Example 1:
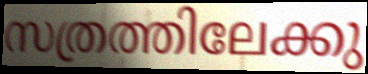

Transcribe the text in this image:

സത്രത്തിലേക്കു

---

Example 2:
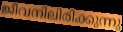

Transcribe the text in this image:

ജീവനിലിരിക്കുന്നു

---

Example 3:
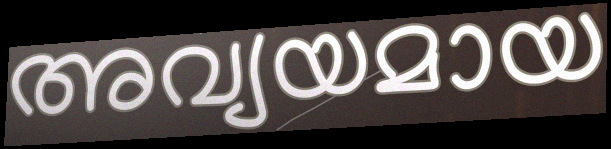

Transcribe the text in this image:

അവ്യയമായ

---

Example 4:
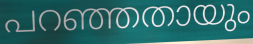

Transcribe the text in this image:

പറഞ്ഞതായും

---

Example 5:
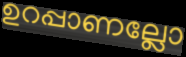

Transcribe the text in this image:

ഉറപ്പാണല്ലോ